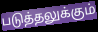
படுத்தலுக்கும்